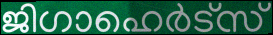
ജിഗാഹെർട്സ്